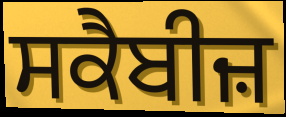
ਸਕੈਬੀਜ਼